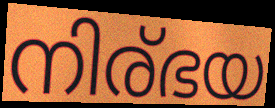
നിര്ഭയ